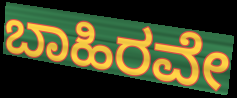
ಬಾಹಿರವೇ